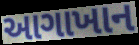
આગાખાન